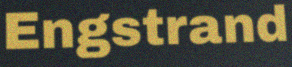
Engstrand